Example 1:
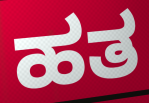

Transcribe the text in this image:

ಹತ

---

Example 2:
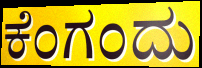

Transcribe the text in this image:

ಕೆಂಗಂದು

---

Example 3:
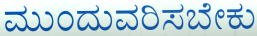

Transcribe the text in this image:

ಮುಂದುವರಿಸಬೇಕು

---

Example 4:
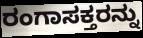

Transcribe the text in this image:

ರಂಗಾಸಕ್ತರನ್ನು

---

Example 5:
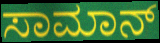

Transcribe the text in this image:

ಸಾಮಾನ್